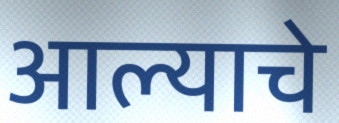
आल्याचे